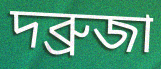
দব্রুজা